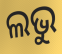
ଲଭୁ